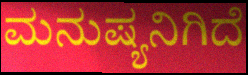
ಮನುಷ್ಯನಿಗಿದೆ